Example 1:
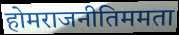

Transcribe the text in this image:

होमराजनीतिममता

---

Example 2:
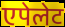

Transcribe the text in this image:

एपेलेट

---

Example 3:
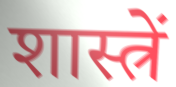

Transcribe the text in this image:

शास्त्रें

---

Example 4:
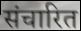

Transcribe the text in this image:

संचारित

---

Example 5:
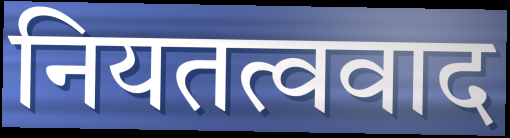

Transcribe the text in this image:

नियतत्ववाद